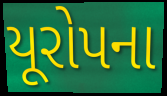
યૂરોપના